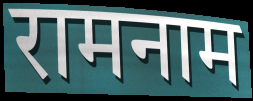
रामनाम